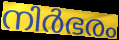
നിർഭരം